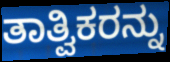
ತಾತ್ವಿಕರನ್ನು